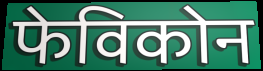
फेविकोन